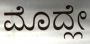
ಮೊದ್ಲೇ